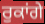
ਰੁਕਾਂਗੇ